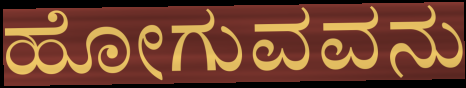
ಹೋಗುವವನು